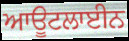
ਆਊਟਲਾਈਨ